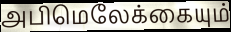
அபிமெலேக்கையும்